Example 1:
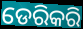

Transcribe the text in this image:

ଡେରିକରି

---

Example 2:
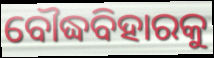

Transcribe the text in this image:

ବୌଦ୍ଧବିହାରକୁ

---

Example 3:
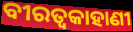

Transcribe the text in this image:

ବୀରତ୍ୱକାହାଣୀ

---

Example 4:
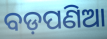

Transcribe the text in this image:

ବଡ଼ପଣିଆ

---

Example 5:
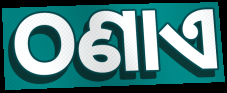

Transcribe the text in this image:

ଠଣାଏ